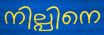
നില്പിനെ